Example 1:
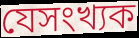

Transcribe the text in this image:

যেসংখ্যক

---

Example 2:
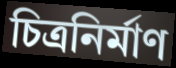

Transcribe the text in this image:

চিত্রনির্মাণ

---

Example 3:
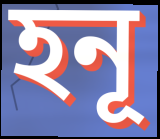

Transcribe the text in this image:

হনূ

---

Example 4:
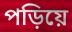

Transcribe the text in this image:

পড়িয়ে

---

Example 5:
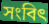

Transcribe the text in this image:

সংবিৎ